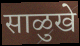
साळुखे